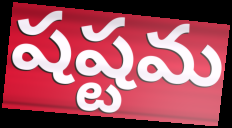
షష్టమ